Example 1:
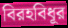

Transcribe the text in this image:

বিরহবিধূর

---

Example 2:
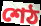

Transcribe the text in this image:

শেঠ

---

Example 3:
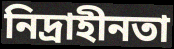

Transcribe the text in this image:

নিদ্রাহীনতা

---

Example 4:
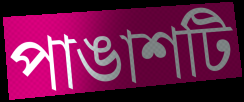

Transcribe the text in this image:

পাঙাশটি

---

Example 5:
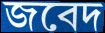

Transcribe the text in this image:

জবেদ